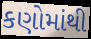
કણોમાંથી